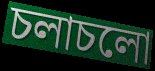
চলাচলো